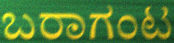
ಬರಾಗಂಟ